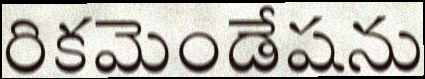
రికమెండేషను